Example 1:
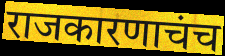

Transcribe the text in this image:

राजकारणाचंच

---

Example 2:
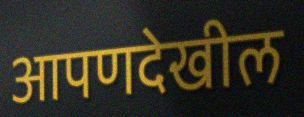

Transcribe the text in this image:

आपणदेखील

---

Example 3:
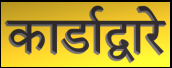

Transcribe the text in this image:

कार्डाद्वारे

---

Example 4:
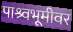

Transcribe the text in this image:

पाश्र्वभूमीवर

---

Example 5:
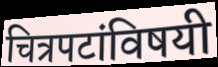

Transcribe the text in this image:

चित्रपटांविषयी